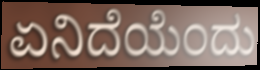
ಏನಿದೆಯೆಂದು